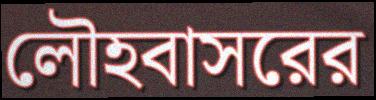
লৌহবাসরের